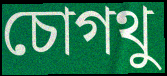
চোগথু